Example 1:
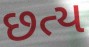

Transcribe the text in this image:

છત્ય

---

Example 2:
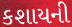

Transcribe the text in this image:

કશાયની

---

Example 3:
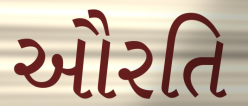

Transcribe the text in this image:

ઔરતિ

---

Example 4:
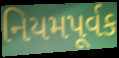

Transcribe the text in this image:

નિયમપૂર્વક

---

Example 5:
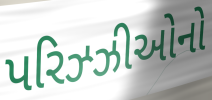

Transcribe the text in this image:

પરિઝ્ઝીઓનો